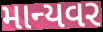
માન્યવર